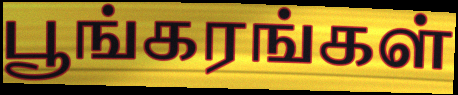
பூங்கரங்கள்